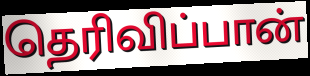
தெரிவிப்பான்